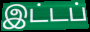
இட்டப்